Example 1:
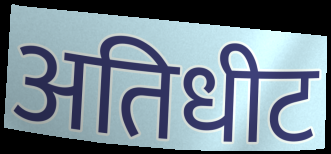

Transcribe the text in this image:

अतिधीट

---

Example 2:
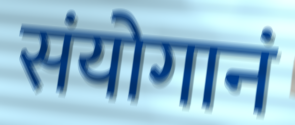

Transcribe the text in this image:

संयोगानं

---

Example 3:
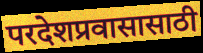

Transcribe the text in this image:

परदेशप्रवासासाठी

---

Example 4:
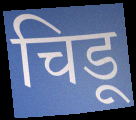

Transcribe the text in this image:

चिडू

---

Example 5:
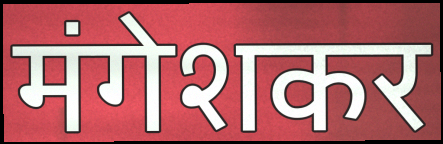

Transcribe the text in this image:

मंगेशकर